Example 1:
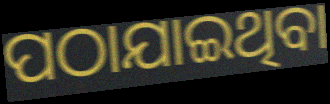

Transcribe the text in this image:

ପଠାଯାଇଥିବା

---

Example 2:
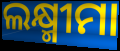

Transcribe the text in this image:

ଲକ୍ଷ୍ମୀମା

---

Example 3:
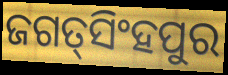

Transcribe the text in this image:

ଜଗତ୍‌ସିଂହପୁର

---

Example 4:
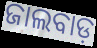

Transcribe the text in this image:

ଜାଲବାଡ଼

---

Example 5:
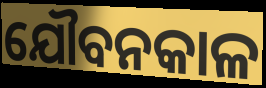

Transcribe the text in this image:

ଯୌବନକାଳ